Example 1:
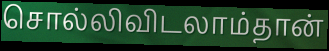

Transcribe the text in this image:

சொல்லிவிடலாம்தான்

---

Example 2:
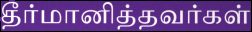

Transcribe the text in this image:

தீர்மானித்தவர்கள்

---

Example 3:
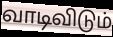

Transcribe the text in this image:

வாடிவிடும்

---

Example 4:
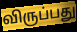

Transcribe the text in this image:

விருப்பது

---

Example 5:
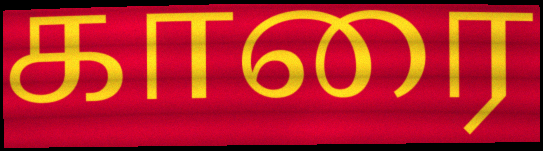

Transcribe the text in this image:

காரை